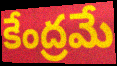
కేంద్రమే